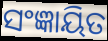
ସଂଜ୍ଞାୟିତ